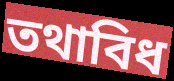
তথাবিধ